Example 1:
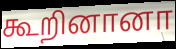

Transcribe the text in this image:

கூறினானா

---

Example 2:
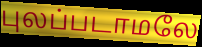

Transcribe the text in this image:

புலப்படாமலே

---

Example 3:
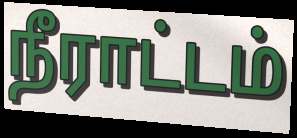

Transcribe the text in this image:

நீராட்டம்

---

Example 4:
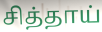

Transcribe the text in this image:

சித்தாய்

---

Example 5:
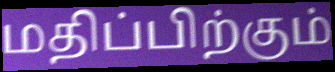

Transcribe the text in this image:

மதிப்பிற்கும்